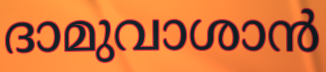
ദാമുവാശാൻ